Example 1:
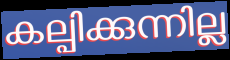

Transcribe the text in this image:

കല്പിക്കുന്നില്ല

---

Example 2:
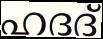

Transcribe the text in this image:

ഹദദ്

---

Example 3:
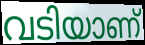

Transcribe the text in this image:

വടിയാണ്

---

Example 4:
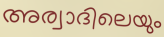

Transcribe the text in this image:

അര്വാദിലെയും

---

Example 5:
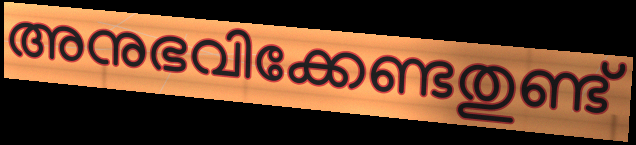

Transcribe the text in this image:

അനുഭവിക്കേണ്ടതുണ്ട്